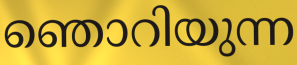
ഞൊറിയുന്ന